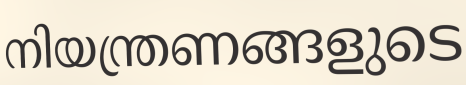
നിയന്ത്രണങ്ങളുടെ